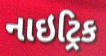
નાઇટ્રિક